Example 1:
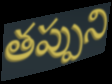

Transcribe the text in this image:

తప్పుని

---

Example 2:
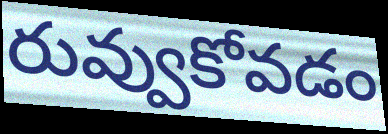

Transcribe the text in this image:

రువ్వుకోవడం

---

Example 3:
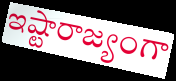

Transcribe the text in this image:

ఇష్టారాజ్యంగా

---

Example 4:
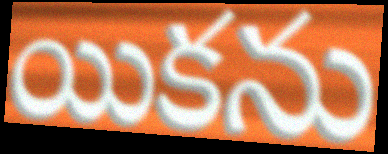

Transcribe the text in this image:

యికను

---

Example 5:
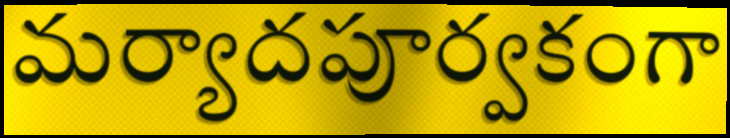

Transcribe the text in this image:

మర్యాదపూర్వకంగా